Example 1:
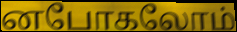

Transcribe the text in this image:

னபோகலோம்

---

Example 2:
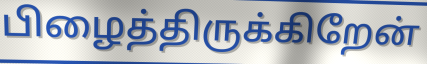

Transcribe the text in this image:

பிழைத்திருக்கிறேன்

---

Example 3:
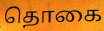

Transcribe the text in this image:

தொகை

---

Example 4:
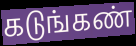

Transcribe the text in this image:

கடுங்கண்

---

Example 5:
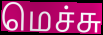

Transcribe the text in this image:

மெச்சு